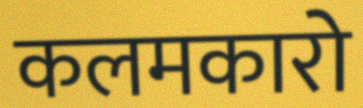
कलमकारो